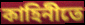
কাহিনীতে